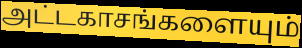
அட்டகாசங்களையும்